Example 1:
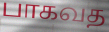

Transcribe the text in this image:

பாகவத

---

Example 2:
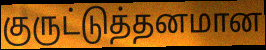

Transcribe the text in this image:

குருட்டுத்தனமான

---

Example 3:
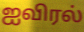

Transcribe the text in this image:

ஐவிரல்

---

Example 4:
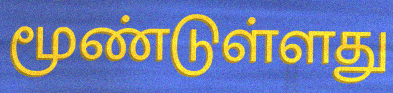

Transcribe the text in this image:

மூண்டுள்ளது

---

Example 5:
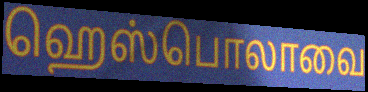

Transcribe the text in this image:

ஹெஸ்பொலாவை